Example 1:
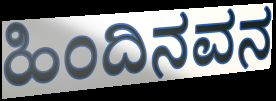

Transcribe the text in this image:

ಹಿಂದಿನವನ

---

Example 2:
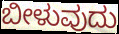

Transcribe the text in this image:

ಬೀಳುವುದು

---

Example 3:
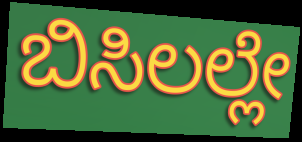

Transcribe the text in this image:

ಬಿಸಿಲಲ್ಲೇ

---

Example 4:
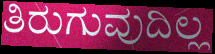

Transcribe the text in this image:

ತಿರುಗುವುದಿಲ್ಲ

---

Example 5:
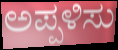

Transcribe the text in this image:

ಅಪ್ಪಳಿಸು